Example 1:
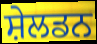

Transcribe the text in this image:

ਸ਼ੇਲਡਨ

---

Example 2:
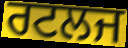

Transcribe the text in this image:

ਰਟਲਜ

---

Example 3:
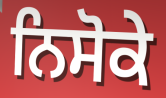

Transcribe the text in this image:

ਨਿਸੋਕੇ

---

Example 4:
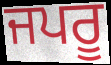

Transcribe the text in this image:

ਜਪਰੂ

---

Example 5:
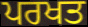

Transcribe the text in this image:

ਪਰਖਤ